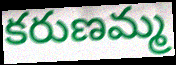
కరుణమ్మ